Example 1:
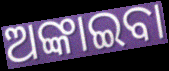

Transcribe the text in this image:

ଅଙ୍କାଇବା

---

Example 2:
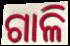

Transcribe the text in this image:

ଗାଳି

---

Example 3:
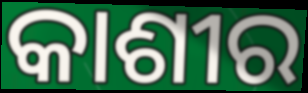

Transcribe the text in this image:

କାଶୀର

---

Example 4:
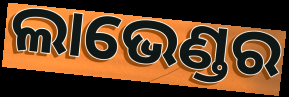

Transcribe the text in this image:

ଲାଭେଣ୍ଡର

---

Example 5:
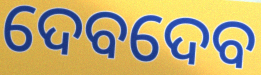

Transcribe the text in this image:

ଦେବଦେବ